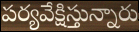
పర్యవేక్షిస్తున్నారు